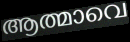
ആത്മാവെ